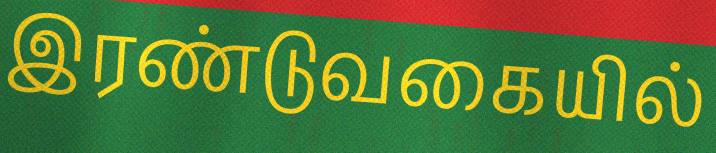
இரண்டுவகையில்